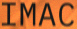
IMAC